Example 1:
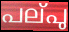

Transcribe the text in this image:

പല്‌പു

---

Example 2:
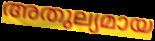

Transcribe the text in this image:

അതുല്യമായ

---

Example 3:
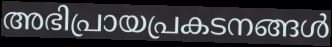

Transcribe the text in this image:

അഭിപ്രായപ്രകടനങ്ങൾ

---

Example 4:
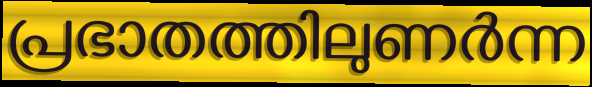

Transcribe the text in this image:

പ്രഭാതത്തിലുണർന്ന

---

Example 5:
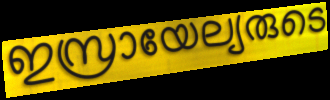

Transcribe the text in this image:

ഇസ്രായേല്യരുടെ